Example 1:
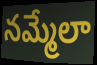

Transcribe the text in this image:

నమ్మేలా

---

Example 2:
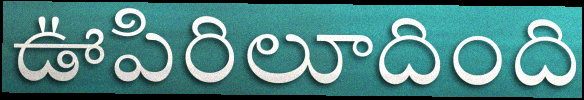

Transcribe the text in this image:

ఊపిరిలూదింది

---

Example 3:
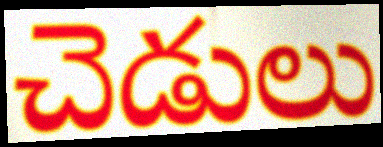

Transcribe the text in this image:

చెడులు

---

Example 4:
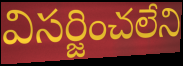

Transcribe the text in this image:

విసర్జించలేని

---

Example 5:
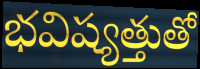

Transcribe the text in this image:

భవిష్యత్తుతో